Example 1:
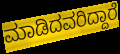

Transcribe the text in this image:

ಮಾಡಿದವರಿದ್ದಾರೆ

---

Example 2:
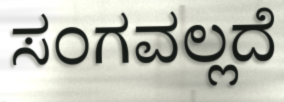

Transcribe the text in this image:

ಸಂಗವಲ್ಲದೆ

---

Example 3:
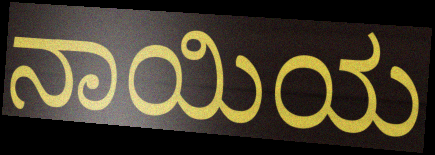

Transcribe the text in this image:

ನಾಯಿಯ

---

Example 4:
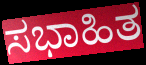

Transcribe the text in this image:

ಸಭಾಹಿತ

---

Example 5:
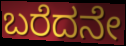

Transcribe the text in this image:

ಬರೆದನೇ